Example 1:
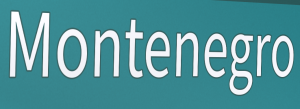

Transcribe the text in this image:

Montenegro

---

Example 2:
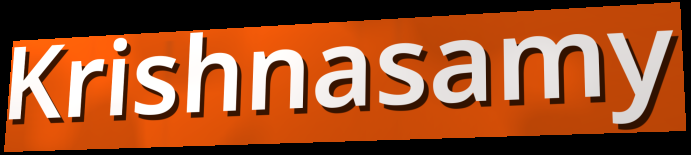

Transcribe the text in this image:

Krishnasamy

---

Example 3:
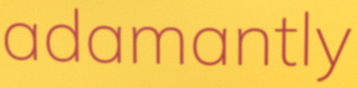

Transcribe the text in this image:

adamantly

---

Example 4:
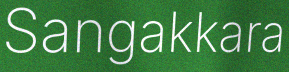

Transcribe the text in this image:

Sangakkara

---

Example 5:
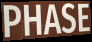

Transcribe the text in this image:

PHASE